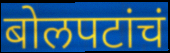
बोलपटांचं